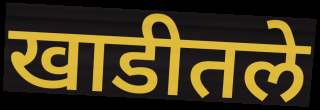
खाडीतले